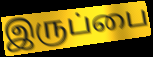
இருப்பை